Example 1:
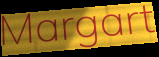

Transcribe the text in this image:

Margart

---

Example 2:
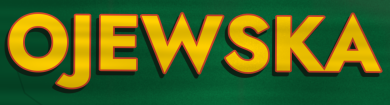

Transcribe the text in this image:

OJEWSKA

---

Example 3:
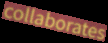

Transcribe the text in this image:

collaborates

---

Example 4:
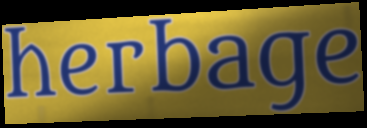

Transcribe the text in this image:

herbage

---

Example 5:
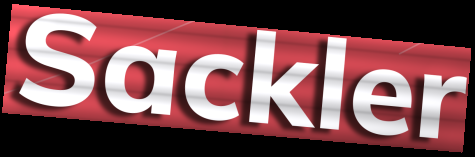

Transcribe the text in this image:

Sackler